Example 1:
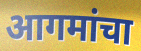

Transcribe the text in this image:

आगमांचा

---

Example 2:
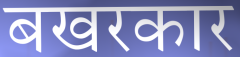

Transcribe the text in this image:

बखरकार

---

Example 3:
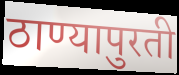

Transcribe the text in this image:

ठाण्यापुरती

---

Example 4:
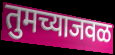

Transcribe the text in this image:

तुमच्याजवळ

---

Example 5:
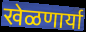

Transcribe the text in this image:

खेळणार्या